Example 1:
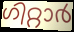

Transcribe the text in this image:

ഗിറ്റാർ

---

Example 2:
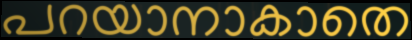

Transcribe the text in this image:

പറയാനാകാതെ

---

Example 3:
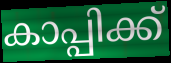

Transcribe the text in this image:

കാപ്പിക്ക്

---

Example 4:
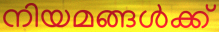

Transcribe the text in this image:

നിയമങ്ങൾക്ക്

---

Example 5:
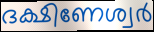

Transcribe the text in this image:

ദക്ഷിണേശ്വർ